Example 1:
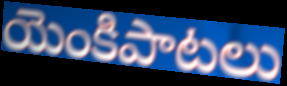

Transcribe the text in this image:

యెంకిపాటలు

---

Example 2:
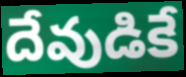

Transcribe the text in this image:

దేవుడికే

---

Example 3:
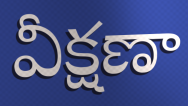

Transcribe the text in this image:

వీక్షణా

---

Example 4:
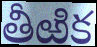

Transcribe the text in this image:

తీఱిక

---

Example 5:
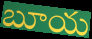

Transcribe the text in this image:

బూయ